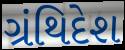
ગ્રંથિદેશ